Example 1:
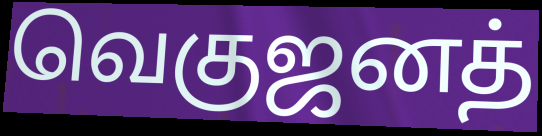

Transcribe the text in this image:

வெகுஜனத்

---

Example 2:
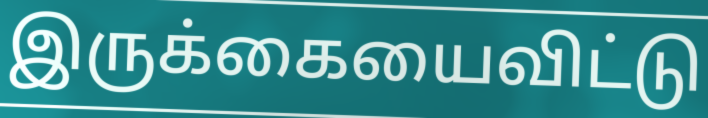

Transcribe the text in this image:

இருக்கையைவிட்டு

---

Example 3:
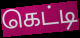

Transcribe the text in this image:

கெட்டி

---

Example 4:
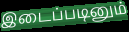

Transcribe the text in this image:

இடைப்படினும்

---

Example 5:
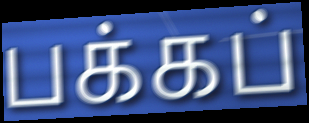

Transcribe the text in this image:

பக்கப்